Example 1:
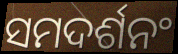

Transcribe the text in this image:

ସମଦର୍ଶନଂ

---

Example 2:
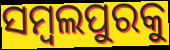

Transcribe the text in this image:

ସମ୍ୱଲପୁରକୁ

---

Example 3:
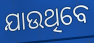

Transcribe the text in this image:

ଯାଉଥିବେ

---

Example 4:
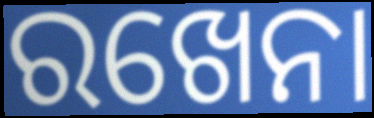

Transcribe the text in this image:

ରଖେନା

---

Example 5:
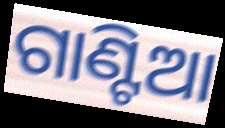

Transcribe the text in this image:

ଗାଣ୍ଟିଆ